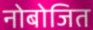
नोबोजित